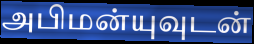
அபிமன்யுவுடன்